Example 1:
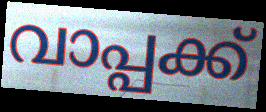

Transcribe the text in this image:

വാപ്പക്ക്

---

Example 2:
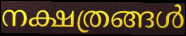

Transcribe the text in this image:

നക്ഷത്രങ്ങൾ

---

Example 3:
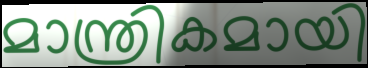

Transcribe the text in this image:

മാന്ത്രികമായി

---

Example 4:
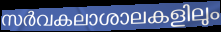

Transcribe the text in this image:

സർവകലാശാലകളിലും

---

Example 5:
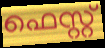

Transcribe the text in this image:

ഫെസ്റ്റ്